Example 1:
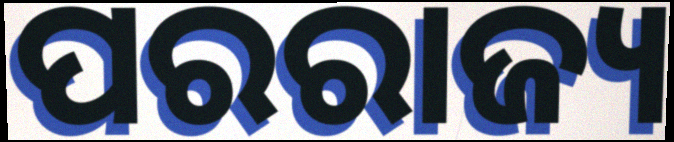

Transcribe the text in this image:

ପରରାଜ୍ୟ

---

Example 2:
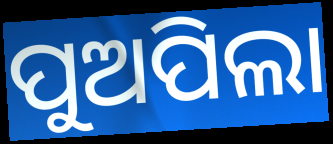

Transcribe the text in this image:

ପୁଅପିଲା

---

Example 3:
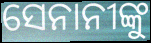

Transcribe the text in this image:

ସେନାନୀଙ୍କୁ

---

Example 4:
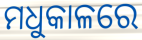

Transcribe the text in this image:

ମଧୁକାଳରେ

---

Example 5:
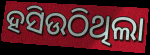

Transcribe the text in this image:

ହସିଉଠିଥିଲା